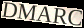
DMARC